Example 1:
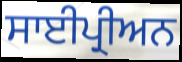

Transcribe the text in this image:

ਸਾਈਪ੍ਰੀਅਨ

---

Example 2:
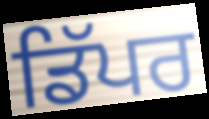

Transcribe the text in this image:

ਡਿੱਪਰ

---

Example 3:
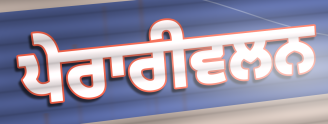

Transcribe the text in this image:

ਪੇਰਾਰੀਵਲਨ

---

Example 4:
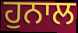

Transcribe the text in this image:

ਹੁਨਾਲ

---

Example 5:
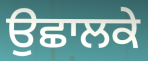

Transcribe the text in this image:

ਉਛਾਲਕੇ